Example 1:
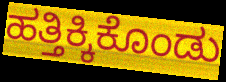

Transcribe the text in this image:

ಹತ್ತಿಕ್ಕಿಕೊಂಡು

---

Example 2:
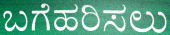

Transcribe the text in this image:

ಬಗೆಹರಿಸಲು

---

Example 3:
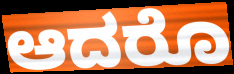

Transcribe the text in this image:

ಆದರೊ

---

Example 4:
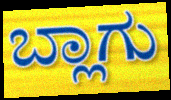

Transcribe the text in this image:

ಬ್ಲಾಗು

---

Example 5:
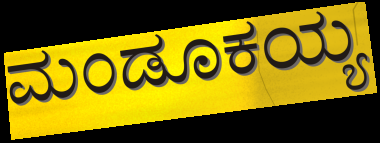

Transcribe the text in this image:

ಮಂಡೂಕಯ್ಯ